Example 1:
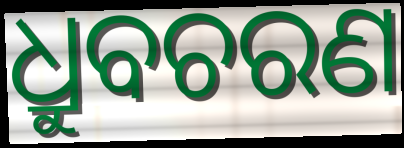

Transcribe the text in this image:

ଧ୍ରୁବଚରଣ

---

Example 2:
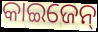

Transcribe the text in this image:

କାଇଜେନ୍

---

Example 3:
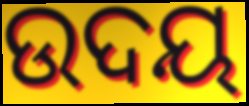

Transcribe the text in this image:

ଉଦୟ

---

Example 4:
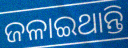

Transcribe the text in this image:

ଜଳାଇଥାନ୍ତି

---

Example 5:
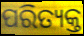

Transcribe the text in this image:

ପରିତ୍ୟକ୍ତ